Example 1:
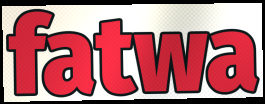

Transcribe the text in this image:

fatwa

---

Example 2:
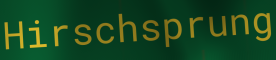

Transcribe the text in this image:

Hirschsprung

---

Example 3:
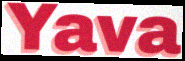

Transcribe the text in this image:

Yava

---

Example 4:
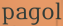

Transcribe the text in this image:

pagol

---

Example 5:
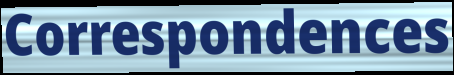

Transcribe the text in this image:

Correspondences